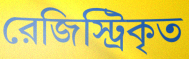
রেজিস্ট্রিকৃত